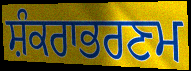
ਸ਼ੰਕਰਾਭਰਣਮ